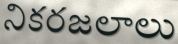
నికరజలాలు